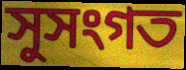
সুসংগত